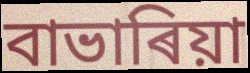
বাভাৰিয়া